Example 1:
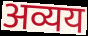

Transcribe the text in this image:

अव्यय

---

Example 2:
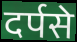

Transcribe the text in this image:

दर्पसे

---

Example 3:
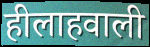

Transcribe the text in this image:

हीलाहवाली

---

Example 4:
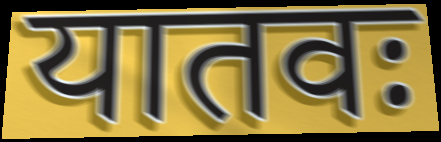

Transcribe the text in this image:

यातवः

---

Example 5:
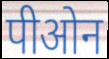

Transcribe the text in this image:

पीओन